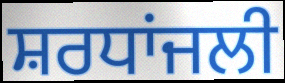
ਸ਼ਰਧਾਂਜਲੀ